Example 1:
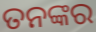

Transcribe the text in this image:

ତନଙ୍କର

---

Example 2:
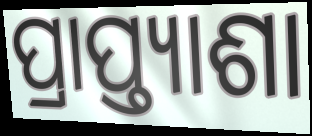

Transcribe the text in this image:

ପ୍ରାପ୍ତ୍ୟାଶା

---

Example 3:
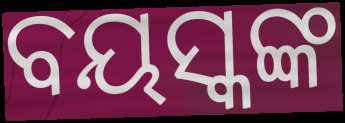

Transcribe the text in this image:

ବୟସ୍କଙ୍କ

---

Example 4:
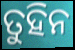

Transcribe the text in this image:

ତୁହିନ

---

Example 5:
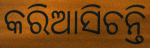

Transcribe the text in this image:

କରିଆସିଚନ୍ତି